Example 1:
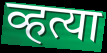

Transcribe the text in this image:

व्हत्या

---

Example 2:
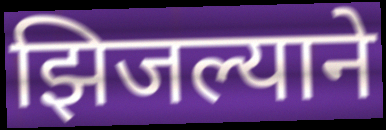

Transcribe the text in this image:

झिजल्याने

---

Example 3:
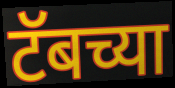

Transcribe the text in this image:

टॅबच्या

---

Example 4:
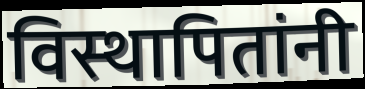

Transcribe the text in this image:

विस्थापितांनी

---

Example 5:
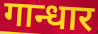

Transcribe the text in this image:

गान्धार